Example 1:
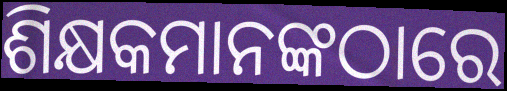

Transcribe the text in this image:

ଶିକ୍ଷକମାନଙ୍କଠାରେ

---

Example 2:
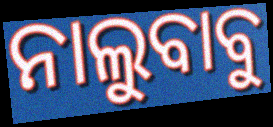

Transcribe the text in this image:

ନାଲୁବାବୁ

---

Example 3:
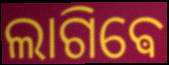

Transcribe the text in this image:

ଲାଗିଵେ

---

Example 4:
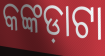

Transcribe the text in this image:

କଙ୍କଡ଼ାଟା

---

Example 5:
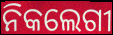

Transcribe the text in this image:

ନିକଲେଗୀ